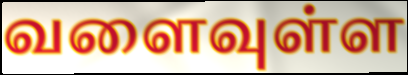
வளைவுள்ள